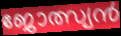
ജോത്സ്യൻ